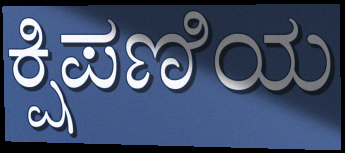
ಕ್ಷಿಪಣಿಯ